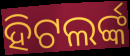
ହିଟଲର୍ଙ୍କ